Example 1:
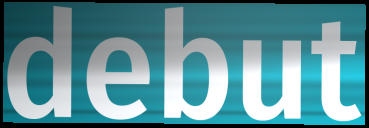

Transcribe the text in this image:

debut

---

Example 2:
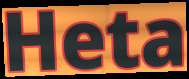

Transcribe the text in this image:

Heta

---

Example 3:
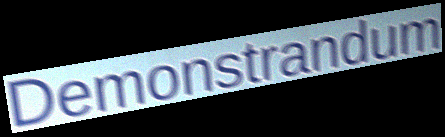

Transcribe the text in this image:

Demonstrandum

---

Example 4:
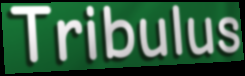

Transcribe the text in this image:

Tribulus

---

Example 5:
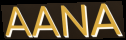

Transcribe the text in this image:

AANA